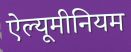
ऐल्यूमीनियम